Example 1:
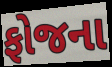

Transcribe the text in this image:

ફોજના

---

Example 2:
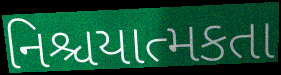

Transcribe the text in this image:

નિશ્ચયાત્મકતા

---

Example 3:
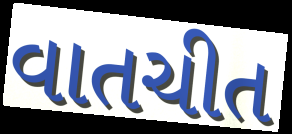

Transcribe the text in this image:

વાતચીત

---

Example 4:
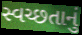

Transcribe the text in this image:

સ્વચ્છતાનું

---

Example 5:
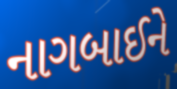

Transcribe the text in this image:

નાગબાઈને